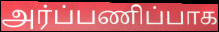
அர்ப்பணிப்பாக